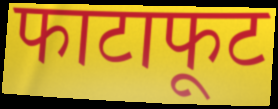
फाटाफूट